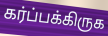
கர்ப்பக்கிருக